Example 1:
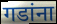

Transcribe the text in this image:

गडांना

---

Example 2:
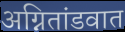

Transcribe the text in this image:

अग्नितांडवात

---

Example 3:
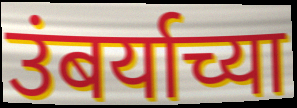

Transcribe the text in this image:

उंबर्याच्या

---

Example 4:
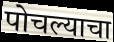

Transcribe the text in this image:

पोचल्याचा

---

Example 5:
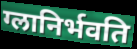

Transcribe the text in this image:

ग्लानिर्भवति